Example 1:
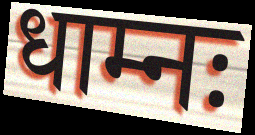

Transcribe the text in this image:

धाम्नः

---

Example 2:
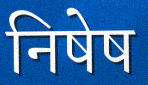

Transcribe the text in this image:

निषेष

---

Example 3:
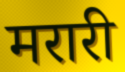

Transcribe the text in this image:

मरारी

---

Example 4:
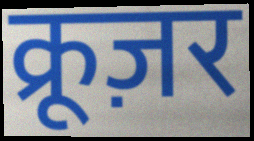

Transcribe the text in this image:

क्रूज़र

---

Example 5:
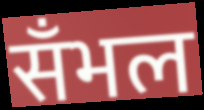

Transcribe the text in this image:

सँभल